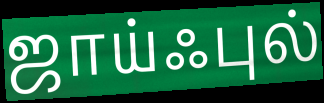
ஜாய்ஃபுல்